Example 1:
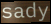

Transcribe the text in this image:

sady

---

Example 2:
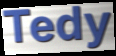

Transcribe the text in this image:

Tedy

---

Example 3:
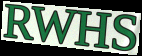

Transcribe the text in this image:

RWHS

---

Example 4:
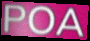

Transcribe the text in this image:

POA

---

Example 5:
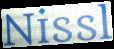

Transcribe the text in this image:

Nissl